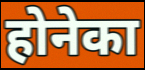
होनेका